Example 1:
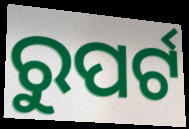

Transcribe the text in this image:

ରୁପର୍ଟ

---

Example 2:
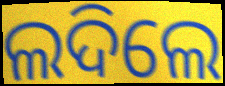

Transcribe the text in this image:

ଲଦିଲେ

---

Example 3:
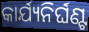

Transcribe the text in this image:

କାର୍ଯ୍ୟନିର୍ଘଣ୍ଟ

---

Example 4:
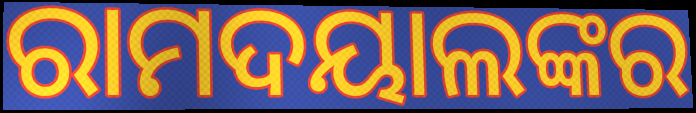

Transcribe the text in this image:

ରାମଦୟାଲଙ୍କର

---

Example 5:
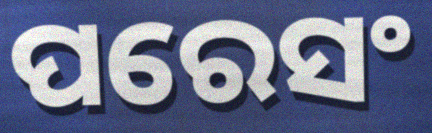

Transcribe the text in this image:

ପରେସଂ